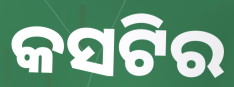
କସଟିର